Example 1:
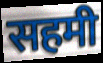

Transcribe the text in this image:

सहमी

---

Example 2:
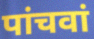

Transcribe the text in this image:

पांचवां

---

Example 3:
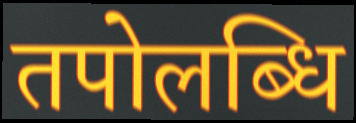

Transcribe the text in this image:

तपोलब्धि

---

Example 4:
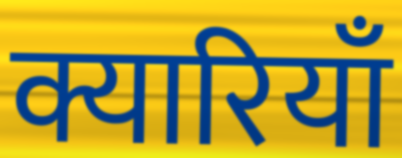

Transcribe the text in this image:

क्यारियाँ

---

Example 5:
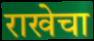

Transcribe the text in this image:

राखेचा